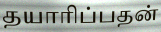
தயாரிப்பதன்